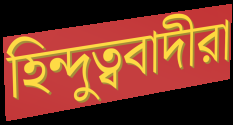
হিন্দুত্ববাদীরা